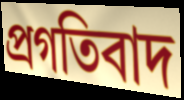
প্রগতিবাদ